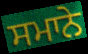
ਸਮਾਨੇ